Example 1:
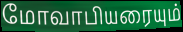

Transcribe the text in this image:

மோவாபியரையும்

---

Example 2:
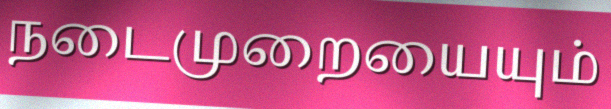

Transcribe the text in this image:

நடைமுறையையும்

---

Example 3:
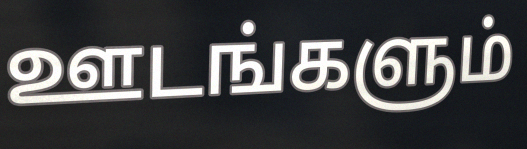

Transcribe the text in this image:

ஊடங்களும்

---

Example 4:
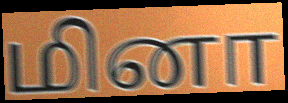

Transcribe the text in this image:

மினா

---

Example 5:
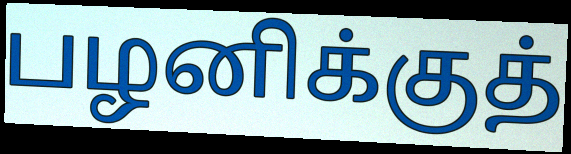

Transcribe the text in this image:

பழனிக்குத்